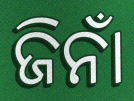
ଜିନାଁ